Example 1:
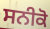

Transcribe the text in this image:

ਸਨੀਕੋ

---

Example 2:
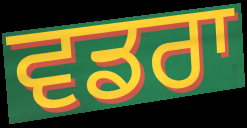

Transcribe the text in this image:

ਵਡਰਾ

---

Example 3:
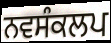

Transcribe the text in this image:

ਨਵਸੰਕਲਪ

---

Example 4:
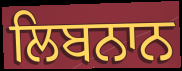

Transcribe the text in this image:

ਲਿਬਨਾਨ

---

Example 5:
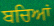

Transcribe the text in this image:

ਬਚਿਆਂ